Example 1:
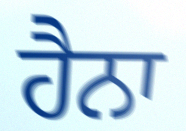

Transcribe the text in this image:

ਹੈਨਾ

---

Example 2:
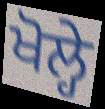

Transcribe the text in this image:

ਖੋਲ੍ਹੇ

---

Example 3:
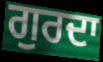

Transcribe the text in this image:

ਗੁਰਦਾ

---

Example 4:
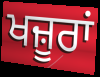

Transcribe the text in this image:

ਖਜ਼ੂਰਾਂ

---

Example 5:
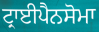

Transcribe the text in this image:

ਟ੍ਰਾਈਪੈਨਸੋਮਾ